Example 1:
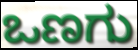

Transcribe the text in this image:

ಒಣಗು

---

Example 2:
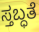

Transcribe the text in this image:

ಸ್ತಬ್ಧತೆ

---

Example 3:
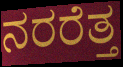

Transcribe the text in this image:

ನರರೆತ್ತ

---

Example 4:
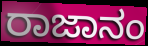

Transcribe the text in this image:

ರಾಜಾನಂ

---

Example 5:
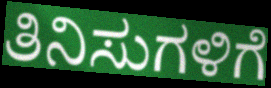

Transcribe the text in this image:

ತಿನಿಸುಗಳಿಗೆ